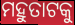
ମହୁତାଟକୁ